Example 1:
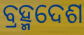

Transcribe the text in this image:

ବ୍ରହ୍ମଦେଶ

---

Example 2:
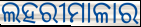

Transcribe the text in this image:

ଲହରୀମାଳାର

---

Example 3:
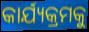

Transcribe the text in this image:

କାର୍ଯ୍ୟକ୍ରମକୁ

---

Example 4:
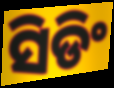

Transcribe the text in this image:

ସିଡିଂ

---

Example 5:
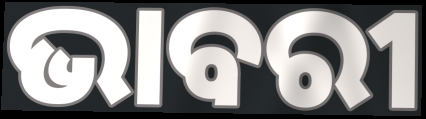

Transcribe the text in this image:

ଭାବରୀ